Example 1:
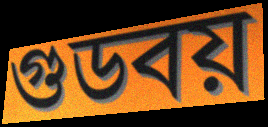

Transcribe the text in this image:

গুডবয়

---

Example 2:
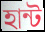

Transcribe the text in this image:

হান্ট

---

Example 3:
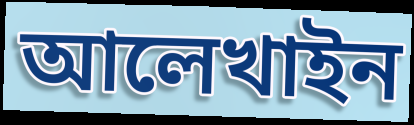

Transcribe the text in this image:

আলেখাইন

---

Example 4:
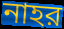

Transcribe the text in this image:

নাহর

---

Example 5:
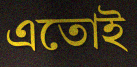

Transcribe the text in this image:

এতোই